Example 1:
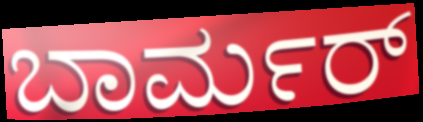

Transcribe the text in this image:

ಬಾರ್ಮರ್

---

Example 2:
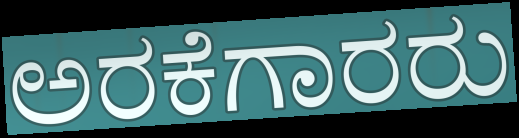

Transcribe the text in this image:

ಅರಕೆಗಾರರು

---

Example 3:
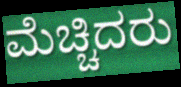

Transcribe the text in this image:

ಮೆಚ್ಚಿದರು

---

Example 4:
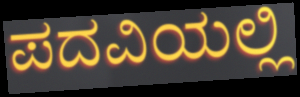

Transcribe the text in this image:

ಪದವಿಯಲ್ಲಿ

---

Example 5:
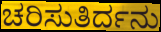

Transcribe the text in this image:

ಚರಿಸುತಿರ್ದನು